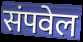
संपवेल